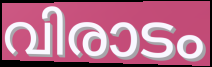
വിരാടം